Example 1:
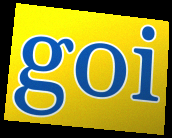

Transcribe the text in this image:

goi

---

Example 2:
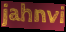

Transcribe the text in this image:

jahnvi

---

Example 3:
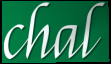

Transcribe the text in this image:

chal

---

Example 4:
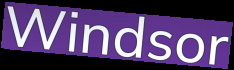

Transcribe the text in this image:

Windsor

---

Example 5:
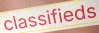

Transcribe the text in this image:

classifieds